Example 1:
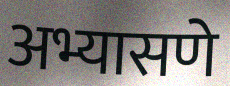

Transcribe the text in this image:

अभ्यासणे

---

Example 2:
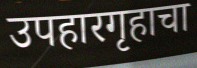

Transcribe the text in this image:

उपहारगृहाचा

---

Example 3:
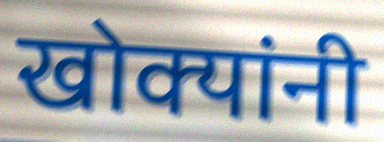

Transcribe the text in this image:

खोक्यांनी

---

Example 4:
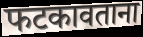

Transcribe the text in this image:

फटकावताना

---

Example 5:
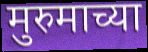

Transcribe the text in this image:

मुरुमाच्या